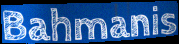
Bahmanis